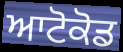
ਆਟੋਕੋਡ